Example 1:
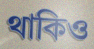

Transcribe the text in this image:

থাকিও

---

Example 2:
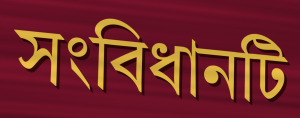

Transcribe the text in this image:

সংবিধানটি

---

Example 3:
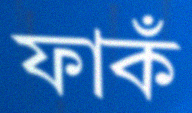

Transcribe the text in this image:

ফাকঁ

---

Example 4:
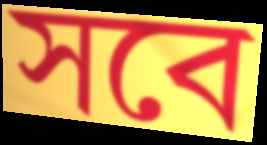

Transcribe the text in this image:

সবে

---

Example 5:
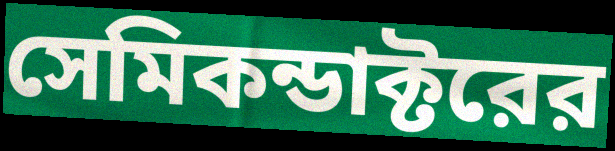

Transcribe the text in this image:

সেমিকন্ডাক্টরের